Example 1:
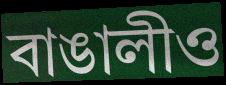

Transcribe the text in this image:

বাঙালীও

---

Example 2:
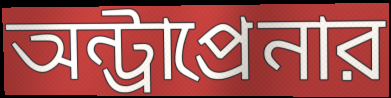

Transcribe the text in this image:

অন্ট্রাপ্রেনার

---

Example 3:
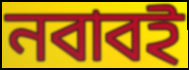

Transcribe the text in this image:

নবাবই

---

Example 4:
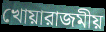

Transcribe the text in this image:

খোয়ারাজমীয়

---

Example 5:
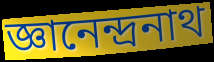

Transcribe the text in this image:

জ্ঞানেন্দ্রনাথ